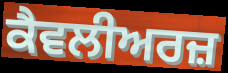
ਕੈਵਲੀਅਰਜ਼